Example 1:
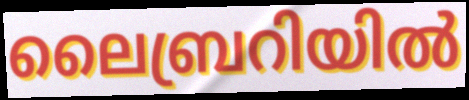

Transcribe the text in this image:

ലൈബ്രറിയിൽ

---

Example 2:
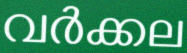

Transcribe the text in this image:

വർക്കല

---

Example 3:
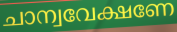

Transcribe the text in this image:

ചാന്വവേക്ഷണേ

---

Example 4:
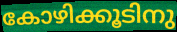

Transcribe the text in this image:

കോഴിക്കൂടിനു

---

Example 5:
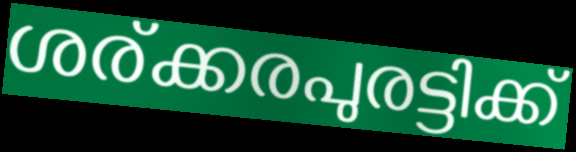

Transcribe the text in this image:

ശര്ക്കരപുരട്ടിക്ക്